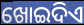
ଖୋଇଦିଏ